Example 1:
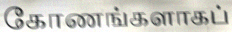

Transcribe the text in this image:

கோணங்களாகப்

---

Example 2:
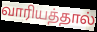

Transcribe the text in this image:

வாரியத்தால்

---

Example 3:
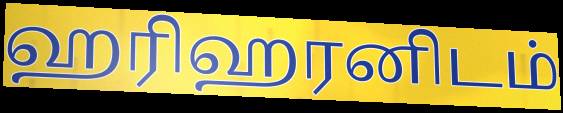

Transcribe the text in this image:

ஹரிஹரனிடம்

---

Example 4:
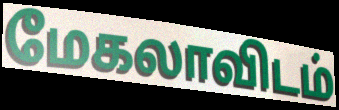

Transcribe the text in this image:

மேகலாவிடம்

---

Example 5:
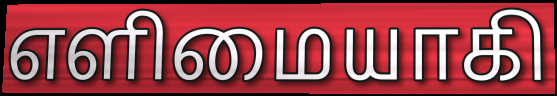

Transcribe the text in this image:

எளிமையாகி